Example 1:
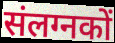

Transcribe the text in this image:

संलग्नकों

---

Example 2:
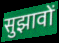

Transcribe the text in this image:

सुझावों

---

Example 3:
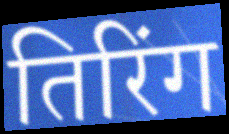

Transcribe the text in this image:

तिरिंग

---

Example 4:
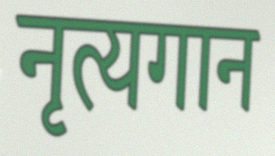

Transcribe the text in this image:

नृत्यगान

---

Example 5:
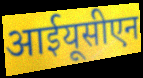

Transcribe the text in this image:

आईयूसीएन